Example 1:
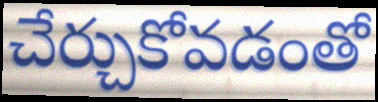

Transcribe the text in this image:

చేర్చుకోవడంతో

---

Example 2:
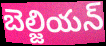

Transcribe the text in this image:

బెల్జియన్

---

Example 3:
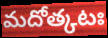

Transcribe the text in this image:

మదోత్కటః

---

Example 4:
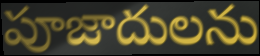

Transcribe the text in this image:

పూజాదులను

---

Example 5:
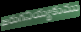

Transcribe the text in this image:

జరుగనియ్యకుము